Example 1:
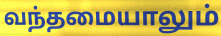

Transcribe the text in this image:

வந்தமையாலும்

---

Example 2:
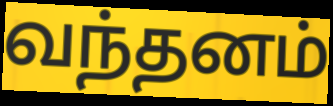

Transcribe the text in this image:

வந்தனம்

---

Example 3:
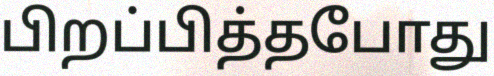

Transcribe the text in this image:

பிறப்பித்தபோது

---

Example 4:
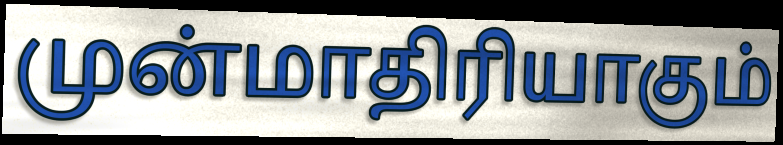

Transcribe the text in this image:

முன்மாதிரியாகும்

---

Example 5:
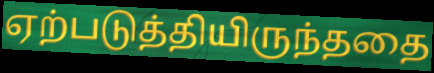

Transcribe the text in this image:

ஏற்படுத்தியிருந்ததை